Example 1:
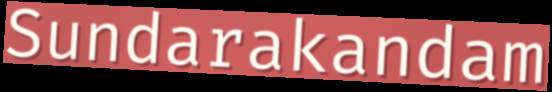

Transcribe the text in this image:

Sundarakandam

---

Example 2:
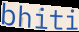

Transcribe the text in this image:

bhiti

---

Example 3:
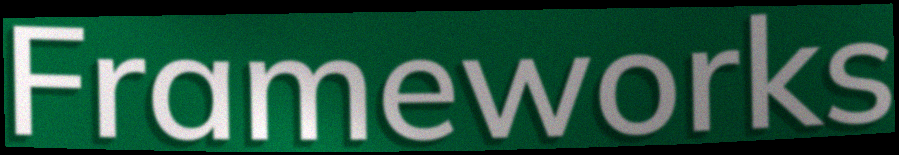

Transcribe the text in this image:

Frameworks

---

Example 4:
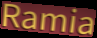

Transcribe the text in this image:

Ramia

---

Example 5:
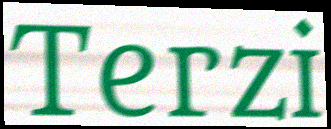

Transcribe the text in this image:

Terzi